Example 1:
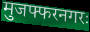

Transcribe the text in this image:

मुजफ्फरनगरः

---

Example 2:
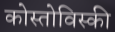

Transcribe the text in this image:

कोस्तोविस्की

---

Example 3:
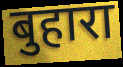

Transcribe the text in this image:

बुहारा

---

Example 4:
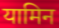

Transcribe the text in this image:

यामिन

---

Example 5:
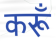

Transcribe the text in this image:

करूँ